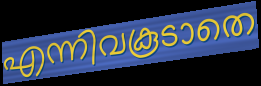
എന്നിവകൂടാതെ